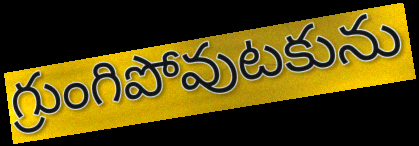
గ్రుంగిపోవుటకును